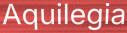
Aquilegia